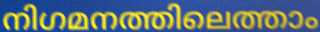
നിഗമനത്തിലെത്താം